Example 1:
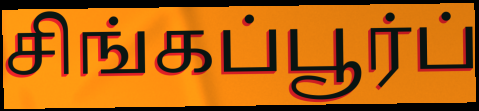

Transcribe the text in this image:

சிங்கப்பூர்ப்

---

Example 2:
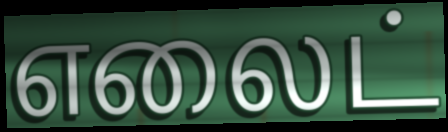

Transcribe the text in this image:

எலைட்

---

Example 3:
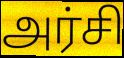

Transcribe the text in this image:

அர்சி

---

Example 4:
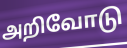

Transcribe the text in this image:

அறிவோடு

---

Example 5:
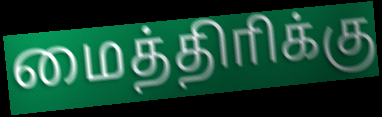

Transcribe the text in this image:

மைத்திரிக்கு